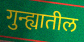
गुन्ह्यातील